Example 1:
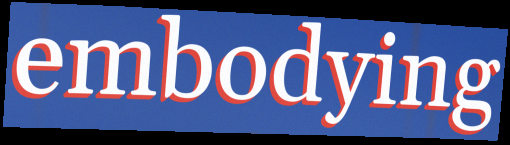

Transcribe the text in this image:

embodying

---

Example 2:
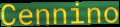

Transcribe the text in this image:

Cennino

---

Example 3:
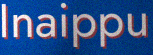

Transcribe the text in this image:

Inaippu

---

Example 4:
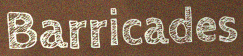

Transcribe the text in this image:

Barricades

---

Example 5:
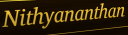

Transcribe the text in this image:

Nithyananthan